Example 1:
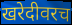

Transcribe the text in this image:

खरेदीवरच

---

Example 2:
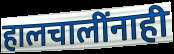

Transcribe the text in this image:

हालचालींनाही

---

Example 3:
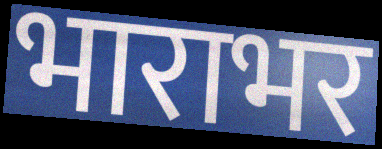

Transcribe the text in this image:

भाराभर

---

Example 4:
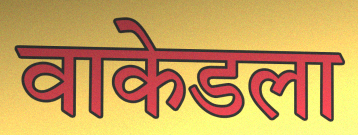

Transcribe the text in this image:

वाकेडला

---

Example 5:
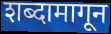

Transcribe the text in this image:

शब्दामागून